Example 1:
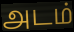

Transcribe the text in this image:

அடம்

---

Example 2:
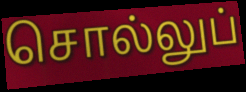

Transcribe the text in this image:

சொல்லுப்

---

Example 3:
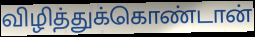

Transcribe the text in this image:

விழித்துக்கொண்டான்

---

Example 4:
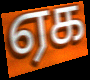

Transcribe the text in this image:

ஏக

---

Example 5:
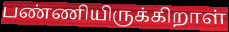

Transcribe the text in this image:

பண்ணியிருக்கிறாள்